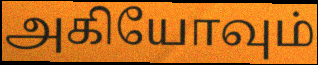
அகியோவும்